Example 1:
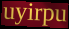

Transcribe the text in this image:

uyirpu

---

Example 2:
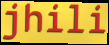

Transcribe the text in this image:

jhili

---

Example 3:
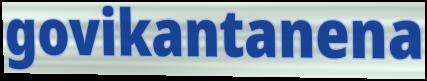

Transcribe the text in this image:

govikantanena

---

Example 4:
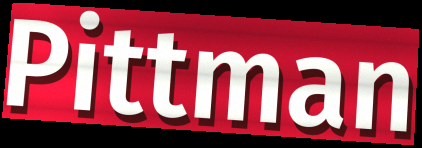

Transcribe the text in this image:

Pittman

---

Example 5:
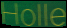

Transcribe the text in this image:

Holle